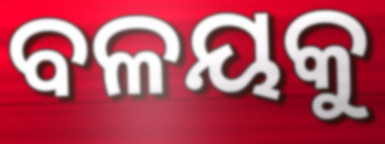
ବଳୟକୁ